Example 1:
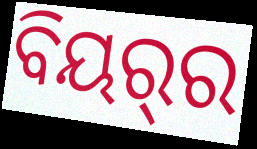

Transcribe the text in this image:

ବିୟର୍‌ର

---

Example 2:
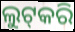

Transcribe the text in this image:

ଲୁଟ୍‌କରି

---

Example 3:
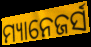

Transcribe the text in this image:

ମ୍ୟାନେଜର୍ସ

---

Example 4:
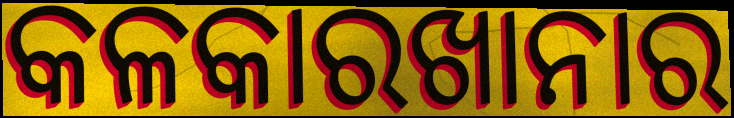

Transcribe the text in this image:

କଳକାରଖାନାର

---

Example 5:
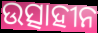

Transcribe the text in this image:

ଉତ୍ସାହୀନ